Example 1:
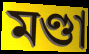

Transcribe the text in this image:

মণ্ডা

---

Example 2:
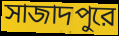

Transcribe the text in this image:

সাজাদপুরে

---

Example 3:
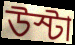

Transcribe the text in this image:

উস্টা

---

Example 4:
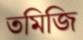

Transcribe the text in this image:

তমিজি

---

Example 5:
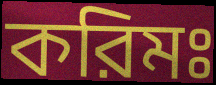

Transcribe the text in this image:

করিমঃ